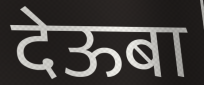
देऊबा